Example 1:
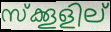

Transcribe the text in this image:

സ്ക്കൂളില്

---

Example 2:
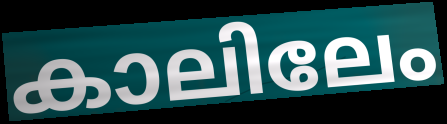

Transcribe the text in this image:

കാലിലേം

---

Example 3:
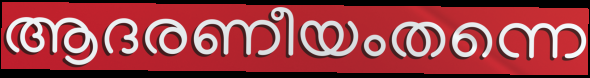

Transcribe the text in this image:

ആദരണീയംതന്നെ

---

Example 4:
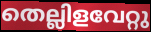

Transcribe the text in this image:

തെല്ലിളവേറ്റു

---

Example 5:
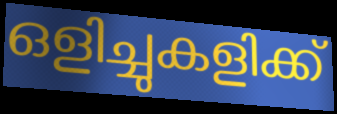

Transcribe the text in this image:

ഒളിച്ചുകളിക്ക്